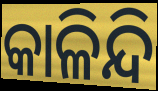
କାଳିନ୍ଦି